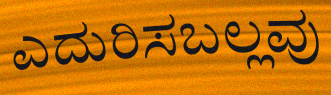
ಎದುರಿಸಬಲ್ಲವು